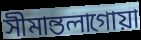
সীমান্তলাগোয়া